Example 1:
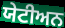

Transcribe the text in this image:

ਯੇਟੀਅਨ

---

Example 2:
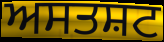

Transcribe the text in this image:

ਅਸਤਸ਼ਟ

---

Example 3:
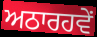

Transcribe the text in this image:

ਅਠਾਰਹਵੇਂ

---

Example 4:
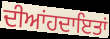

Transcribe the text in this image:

ਦੀਆਂਹਦਾਇਤਾਂ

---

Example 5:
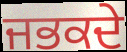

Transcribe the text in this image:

ਜਭਕਦੇ